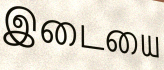
இடையை